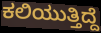
ಕಲಿಯುತ್ತಿದ್ದೆ